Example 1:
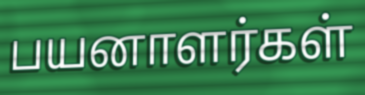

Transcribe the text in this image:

பயனாளர்கள்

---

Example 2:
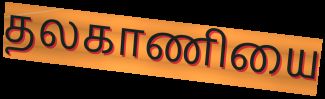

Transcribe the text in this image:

தலகாணியை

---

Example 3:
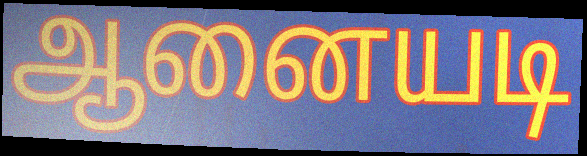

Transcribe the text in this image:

ஆனையடி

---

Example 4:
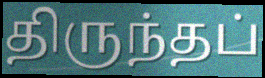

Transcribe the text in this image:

திருந்தப்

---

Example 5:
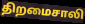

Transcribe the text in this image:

திறமைசாலி